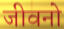
जीवनो